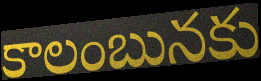
కాలంబునకు